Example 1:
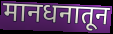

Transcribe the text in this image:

मानधनातून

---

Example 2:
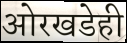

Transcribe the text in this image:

ओरखडेही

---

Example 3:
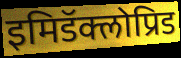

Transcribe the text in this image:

इमिडॅक्लोप्रिड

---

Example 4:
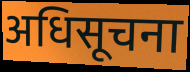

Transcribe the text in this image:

अधिसूचना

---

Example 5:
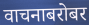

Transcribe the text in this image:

वाचनाबरोबर